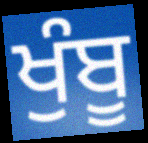
ਖੁੰਬੂ